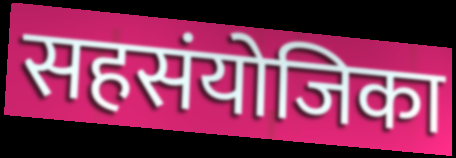
सहसंयोजिका